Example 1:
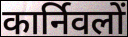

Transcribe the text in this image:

कार्निवलों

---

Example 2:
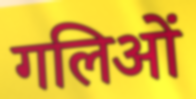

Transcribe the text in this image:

गलिओं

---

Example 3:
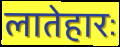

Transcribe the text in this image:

लातेहारः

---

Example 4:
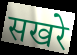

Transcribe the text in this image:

सखरे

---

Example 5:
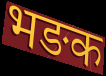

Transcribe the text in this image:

भङक